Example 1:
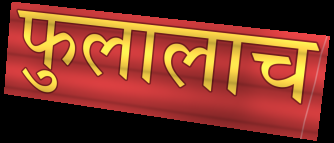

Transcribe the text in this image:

फुलालाच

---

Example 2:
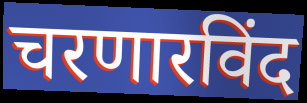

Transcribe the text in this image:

चरणारविंद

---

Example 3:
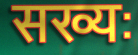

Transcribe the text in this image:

सख्यः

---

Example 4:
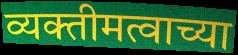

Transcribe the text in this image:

व्यक्तीमत्वाच्या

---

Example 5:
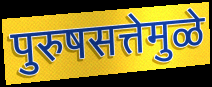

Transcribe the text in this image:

पुरुषसत्तेमुळे